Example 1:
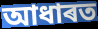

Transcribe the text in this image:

আধাৰত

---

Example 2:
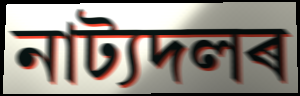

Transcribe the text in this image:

নাট্যদলৰ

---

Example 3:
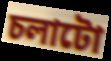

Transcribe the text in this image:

চলাটো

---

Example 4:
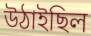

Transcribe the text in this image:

উঠাইছিল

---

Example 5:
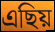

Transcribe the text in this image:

এছিয়